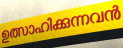
ഉത്സാഹിക്കുന്നവൻ